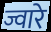
ज्वारे